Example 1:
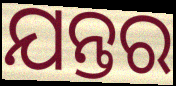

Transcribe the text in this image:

ଯନ୍ତର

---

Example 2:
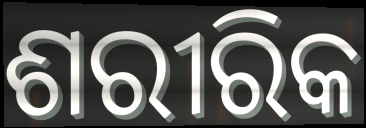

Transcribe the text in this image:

ଶରୀରିକ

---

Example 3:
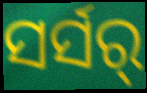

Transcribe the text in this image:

ସର୍ସର୍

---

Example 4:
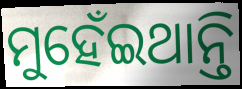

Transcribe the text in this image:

ମୁହେଁଇଥାନ୍ତି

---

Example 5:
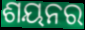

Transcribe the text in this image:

ଶୟନର